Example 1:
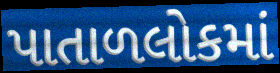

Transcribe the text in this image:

પાતાળલોકમાં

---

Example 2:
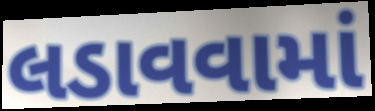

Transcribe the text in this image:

લડાવવામાં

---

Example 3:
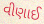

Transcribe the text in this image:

વીણાઈ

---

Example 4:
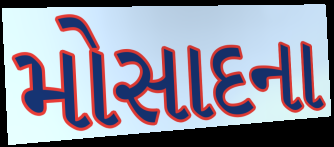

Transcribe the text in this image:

મોસાદના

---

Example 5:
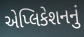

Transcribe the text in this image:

એપ્લિકેશનનું